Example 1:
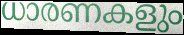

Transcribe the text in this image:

ധാരണകളും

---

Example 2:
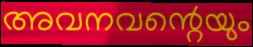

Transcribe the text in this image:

അവനവന്റെയും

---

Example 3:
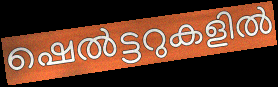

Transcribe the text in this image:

ഷെൽട്ടറുകളിൽ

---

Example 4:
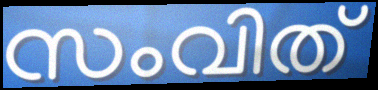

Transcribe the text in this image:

സംവിത്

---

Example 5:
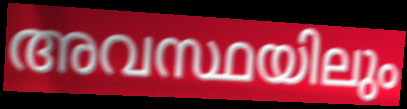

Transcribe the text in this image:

അവസ്ഥയിലും